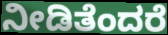
ನೀಡಿತೆಂದರೆ